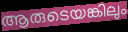
ആരുടെയങ്കിലും